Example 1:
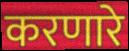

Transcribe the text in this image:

करणारे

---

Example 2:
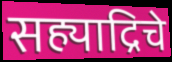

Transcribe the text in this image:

सह्याद्रिचे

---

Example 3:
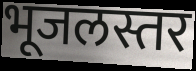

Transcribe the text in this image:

भूजलस्तर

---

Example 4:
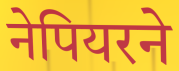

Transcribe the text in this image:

नेपियरने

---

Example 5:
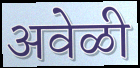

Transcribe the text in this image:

अवेळी